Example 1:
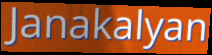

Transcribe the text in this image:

Janakalyan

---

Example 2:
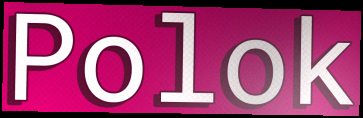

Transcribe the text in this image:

Polok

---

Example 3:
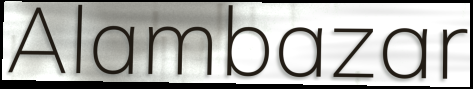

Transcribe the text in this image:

Alambazar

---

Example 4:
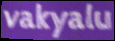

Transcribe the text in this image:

vakyalu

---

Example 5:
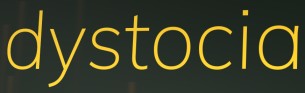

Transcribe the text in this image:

dystocia